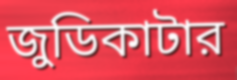
জুডিকাটার